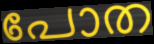
പോത